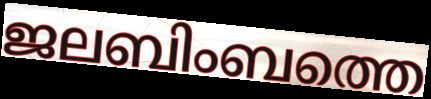
ജലബിംബത്തെ